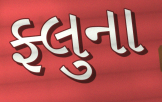
ફ્લુના